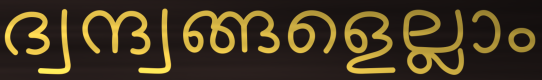
ദ്വന്ദ്വങ്ങളെല്ലാം